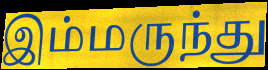
இம்மருந்து